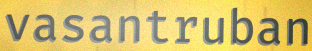
vasantruban